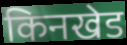
किनखेड